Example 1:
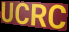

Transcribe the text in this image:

UCRC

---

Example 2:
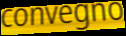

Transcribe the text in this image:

convegno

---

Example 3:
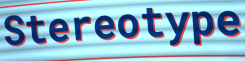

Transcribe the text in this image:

Stereotype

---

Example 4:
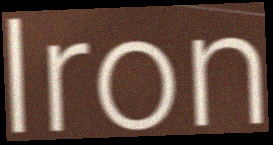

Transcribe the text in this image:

Iron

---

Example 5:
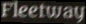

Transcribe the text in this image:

Fleetway